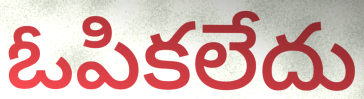
ఓపికలేదు